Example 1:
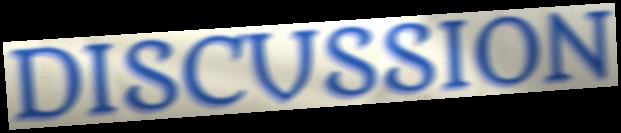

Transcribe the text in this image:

DISCUSSION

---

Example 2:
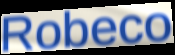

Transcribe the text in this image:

Robeco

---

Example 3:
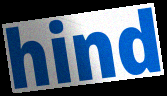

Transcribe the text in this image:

hind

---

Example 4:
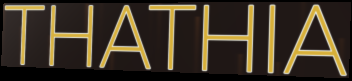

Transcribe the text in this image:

THATHIA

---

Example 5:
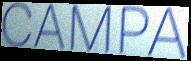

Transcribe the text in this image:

CAMPA